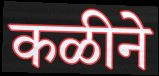
कळीने